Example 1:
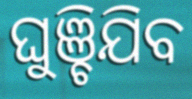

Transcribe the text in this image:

ଘୁଞ୍ଚିଯିବ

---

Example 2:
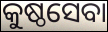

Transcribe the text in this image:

କୁଷ୍ଠସେବା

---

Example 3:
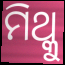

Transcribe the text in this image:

ମିଥ୍କୁ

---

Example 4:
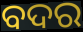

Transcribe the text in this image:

ବଦର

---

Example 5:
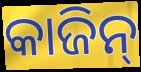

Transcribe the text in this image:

କାଜିନ୍